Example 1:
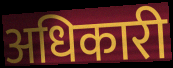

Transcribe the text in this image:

अधिकारी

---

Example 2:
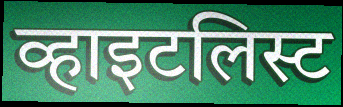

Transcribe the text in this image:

व्हाइटलिस्ट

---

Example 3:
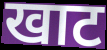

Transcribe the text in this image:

खाट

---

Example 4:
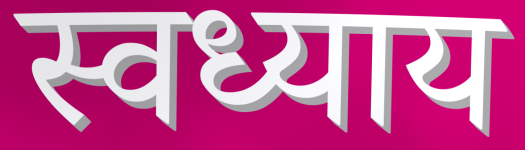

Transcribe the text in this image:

स्वध्याय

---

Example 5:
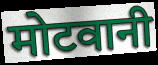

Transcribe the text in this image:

मोटवानी